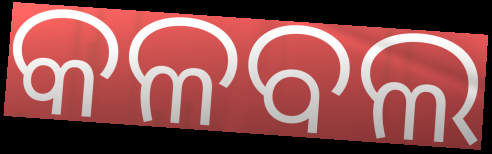
କଳବଲ